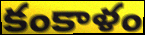
కంకాళం